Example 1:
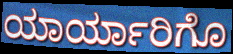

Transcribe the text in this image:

ಯಾರ್ಯಾರಿಗೊ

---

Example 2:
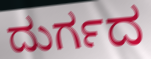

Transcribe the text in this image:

ದುರ್ಗದ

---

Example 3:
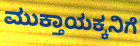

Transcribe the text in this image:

ಮುಕ್ತಾಯಕ್ಕನಿಗೆ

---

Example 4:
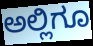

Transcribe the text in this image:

ಅಲ್ಲಿಗೂ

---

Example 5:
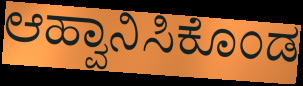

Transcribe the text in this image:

ಆಹ್ವಾನಿಸಿಕೊಂಡ